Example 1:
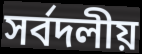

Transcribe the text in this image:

সৰ্বদলীয়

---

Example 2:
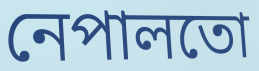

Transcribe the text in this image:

নেপালতো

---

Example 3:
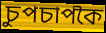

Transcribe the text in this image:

চুপচাপকৈ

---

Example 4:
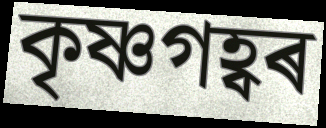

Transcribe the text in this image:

কৃষ্ণগহ্বৰ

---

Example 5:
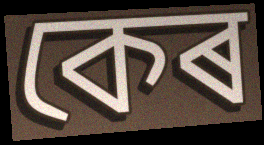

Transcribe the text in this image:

কেৰ